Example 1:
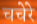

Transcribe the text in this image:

चचेरे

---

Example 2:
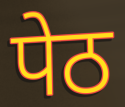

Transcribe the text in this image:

पेठ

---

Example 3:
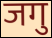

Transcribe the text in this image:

जगु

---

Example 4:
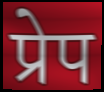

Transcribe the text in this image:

प्रेप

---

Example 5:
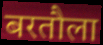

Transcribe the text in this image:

बरतौला